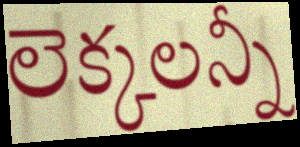
లెక్కలన్నీ